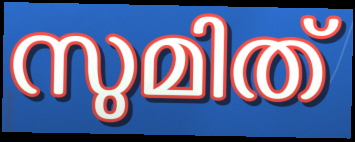
സുമിത്